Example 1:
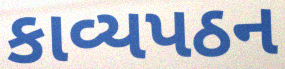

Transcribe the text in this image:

કાવ્યપઠન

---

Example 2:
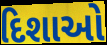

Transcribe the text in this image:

દિશાઓ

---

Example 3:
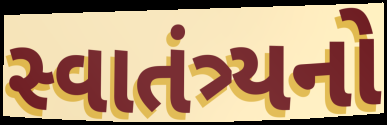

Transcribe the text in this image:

સ્વાતંત્ર્યનો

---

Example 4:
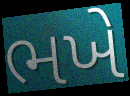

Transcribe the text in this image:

ભખે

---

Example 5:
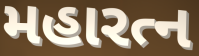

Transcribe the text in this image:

મહારત્ન